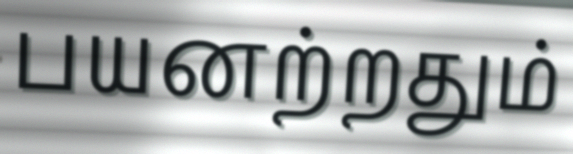
பயனற்றதும்